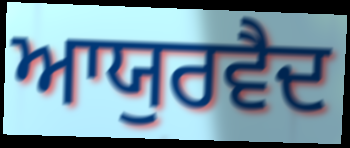
ਆਯੁਰਵੈਦ